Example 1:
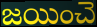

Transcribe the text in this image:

జయించె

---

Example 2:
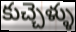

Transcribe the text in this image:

కుచ్చెళ్ళు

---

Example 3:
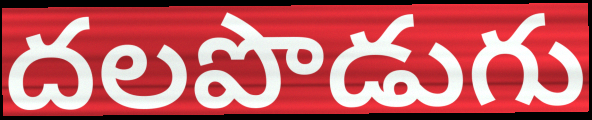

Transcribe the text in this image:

దలపొడుగు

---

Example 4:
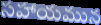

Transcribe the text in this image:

సహాయమున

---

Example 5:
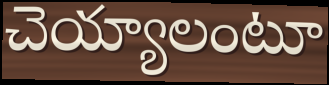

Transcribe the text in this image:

చెయ్యాలంటూ